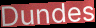
Dundes